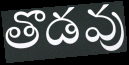
తొడవు